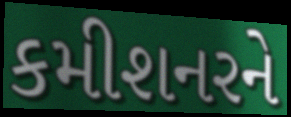
કમીશનરને